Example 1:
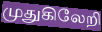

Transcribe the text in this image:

முதுகிலேறி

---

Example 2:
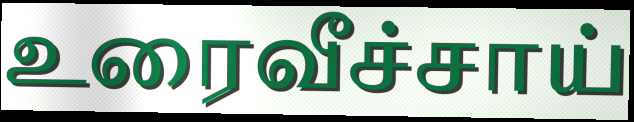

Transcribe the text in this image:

உரைவீச்சாய்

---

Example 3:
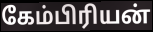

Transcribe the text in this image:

கேம்பிரியன்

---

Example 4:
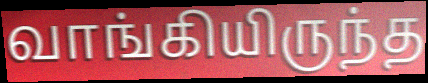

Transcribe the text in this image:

வாங்கியிருந்த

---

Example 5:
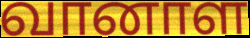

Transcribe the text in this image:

வானாள